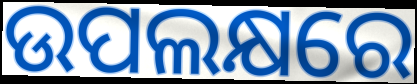
ଉପଲକ୍ଷରେ